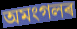
অমংগলৰ